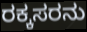
ರಕ್ಕಸರನು